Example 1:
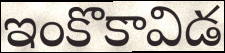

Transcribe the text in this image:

ఇంకొకావిడ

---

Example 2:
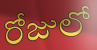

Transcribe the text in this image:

రోజులో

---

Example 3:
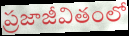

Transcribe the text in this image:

ప్రజాజీవితంలో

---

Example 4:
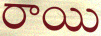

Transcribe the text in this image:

రాయి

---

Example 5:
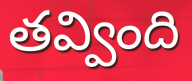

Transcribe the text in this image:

తవ్వింది